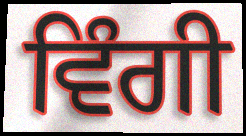
ਵਿੰਗੀ